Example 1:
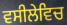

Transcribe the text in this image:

ਵਸੀਲੇਵਿਚ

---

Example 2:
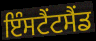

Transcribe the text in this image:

ਇੰਸਟੈਂਟਸੈਂਡ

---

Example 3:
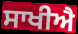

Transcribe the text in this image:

ਸਾਖੀਐ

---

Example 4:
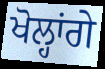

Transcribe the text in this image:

ਖੋਲ੍ਹਾਂਗੇ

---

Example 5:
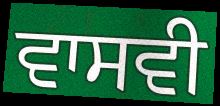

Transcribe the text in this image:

ਵਾਸਵੀ